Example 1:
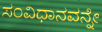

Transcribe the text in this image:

ಸಂವಿಧಾನವನ್ನೇ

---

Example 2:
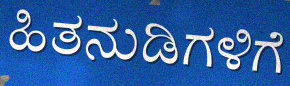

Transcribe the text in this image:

ಹಿತನುಡಿಗಳಿಗೆ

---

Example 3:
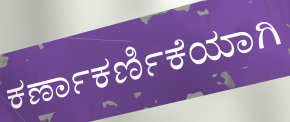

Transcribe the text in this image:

ಕರ್ಣಾಕರ್ಣಿಕೆಯಾಗಿ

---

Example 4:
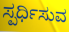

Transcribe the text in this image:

ಸ್ಪರ್ಧಿಸುವ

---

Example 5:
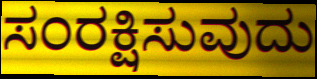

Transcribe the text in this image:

ಸಂರಕ್ಷಿಸುವುದು